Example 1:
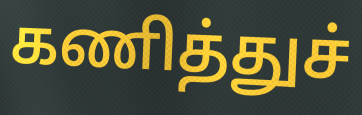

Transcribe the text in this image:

கணித்துச்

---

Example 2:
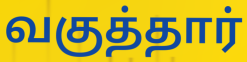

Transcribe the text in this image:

வகுத்தார்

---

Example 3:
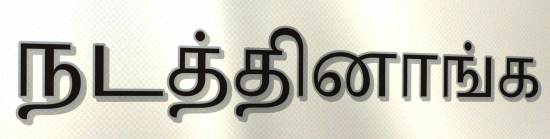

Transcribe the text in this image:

நடத்தினாங்க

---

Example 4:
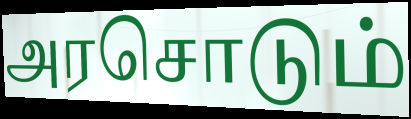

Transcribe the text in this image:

அரசொடும்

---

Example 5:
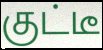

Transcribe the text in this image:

குட்டீ